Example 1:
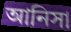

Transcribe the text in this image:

আনিসা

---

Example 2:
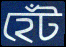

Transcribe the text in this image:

হেঁট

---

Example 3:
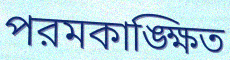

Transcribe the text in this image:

পরমকাঙ্ক্ষিত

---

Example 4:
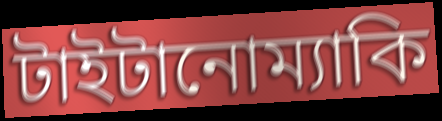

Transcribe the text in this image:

টাইটানোম্যাকি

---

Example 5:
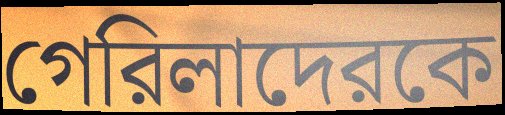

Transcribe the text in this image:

গেরিলাদেরকে